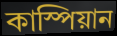
কাস্পিয়ান